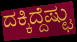
ದಕ್ಕಿದ್ದೆಷ್ಟು